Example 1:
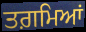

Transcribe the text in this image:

ਤਗ਼ਮਿਆਂ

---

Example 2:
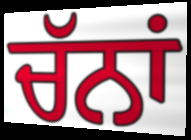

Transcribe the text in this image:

ਚੱਨਾਂ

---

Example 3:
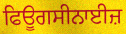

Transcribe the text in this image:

ਫਿਊਗਸੀਨਾਈਜ਼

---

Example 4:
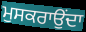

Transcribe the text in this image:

ਮੁਸਕਰਾਉਂਦਾ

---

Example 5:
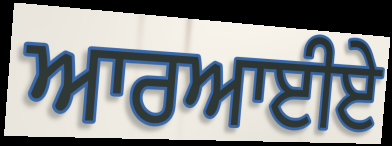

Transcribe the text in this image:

ਆਰਆਈਏ